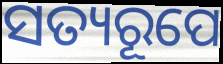
ସତ୍ୟରୂପେ